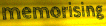
memorising